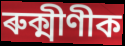
ৰুক্মীণীক